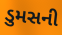
ડુમસની